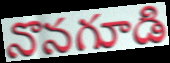
నొనగూడి